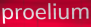
proelium